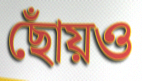
ছোঁয়ও